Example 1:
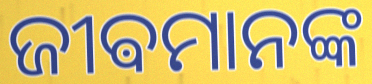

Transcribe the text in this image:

ଜୀଵମାନଙ୍କ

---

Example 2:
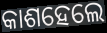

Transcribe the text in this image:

କାଶହେଲେ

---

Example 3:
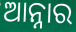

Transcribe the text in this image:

ଆନ୍ନାର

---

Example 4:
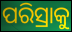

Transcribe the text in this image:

ପରିସ୍ରାକୁ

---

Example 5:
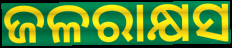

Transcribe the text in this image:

ଜଳରାକ୍ଷସ